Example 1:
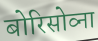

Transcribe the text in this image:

बोरिसोव्ना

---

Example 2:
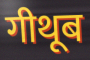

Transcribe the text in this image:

गीथूब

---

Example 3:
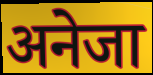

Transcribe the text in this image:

अनेजा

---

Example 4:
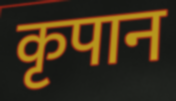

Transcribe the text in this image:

कृपान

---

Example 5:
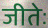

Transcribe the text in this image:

जीतेः